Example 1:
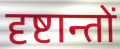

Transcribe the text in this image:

दृष्टान्तों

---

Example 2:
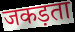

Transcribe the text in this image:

जकड़ता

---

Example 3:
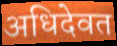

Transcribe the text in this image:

अधिदेवत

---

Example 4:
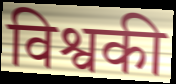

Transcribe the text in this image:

विश्वकी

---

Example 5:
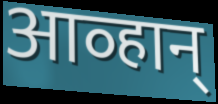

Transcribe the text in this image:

आव्हान्